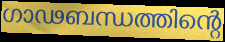
ഗാഢബന്ധത്തിന്റെ